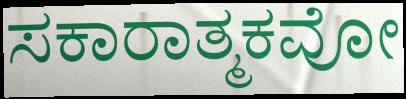
ಸಕಾರಾತ್ಮಕವೋ